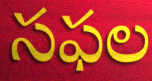
సఫల